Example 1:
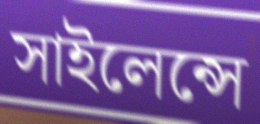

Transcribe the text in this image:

সাইলেন্সে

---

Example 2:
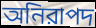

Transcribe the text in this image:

অনিরাপদ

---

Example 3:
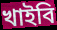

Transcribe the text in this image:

খাইবি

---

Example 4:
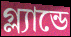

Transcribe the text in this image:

গ্ল্যান্ডে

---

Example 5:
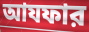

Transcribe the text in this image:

আযফার